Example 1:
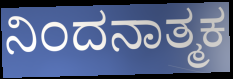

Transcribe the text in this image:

ನಿಂದನಾತ್ಮಕ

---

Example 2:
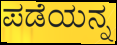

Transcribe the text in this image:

ಪಡೆಯನ್ನ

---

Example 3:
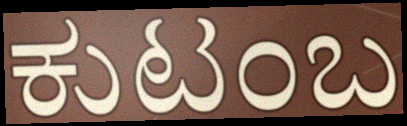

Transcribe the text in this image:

ಕುಟಂಬ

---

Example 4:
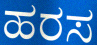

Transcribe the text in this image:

ಹರಸ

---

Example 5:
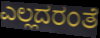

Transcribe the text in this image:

ಎಲ್ಲದರಂತೆ